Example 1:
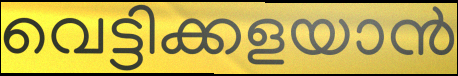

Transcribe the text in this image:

വെട്ടിക്കളയാൻ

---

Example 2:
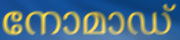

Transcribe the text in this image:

നോമാഡ്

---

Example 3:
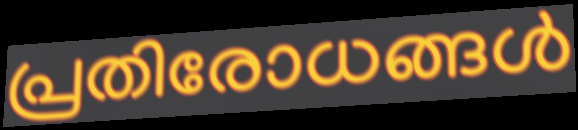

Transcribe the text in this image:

പ്രതിരോധങ്ങൾ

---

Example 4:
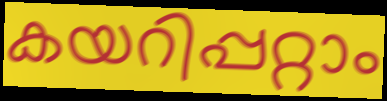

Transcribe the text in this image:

കയറിപ്പറ്റാം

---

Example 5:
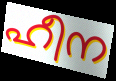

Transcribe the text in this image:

ഹീന